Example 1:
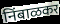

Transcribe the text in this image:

निंबाळकर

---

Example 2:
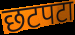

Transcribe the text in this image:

छटपटा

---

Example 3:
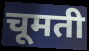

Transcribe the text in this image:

चूमती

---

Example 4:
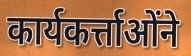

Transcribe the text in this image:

कार्यकर्त्ताओंने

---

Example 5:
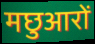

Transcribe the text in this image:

मछुआरों